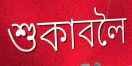
শুকাবলৈ